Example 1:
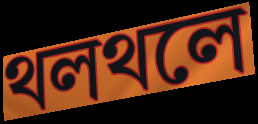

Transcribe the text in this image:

থলথলে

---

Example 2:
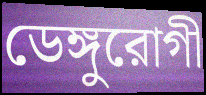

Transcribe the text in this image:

ডেঙ্গুরোগী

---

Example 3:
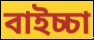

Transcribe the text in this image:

বাইচ্চা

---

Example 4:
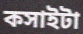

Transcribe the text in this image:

কসাইটা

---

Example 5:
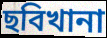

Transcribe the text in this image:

ছবিখানা